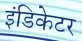
इंडिकेटर